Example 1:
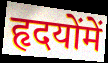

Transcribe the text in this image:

हृदयोंमें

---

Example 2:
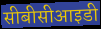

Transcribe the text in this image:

सीबीसीआइडी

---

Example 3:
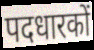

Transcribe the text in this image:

पदधारकों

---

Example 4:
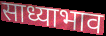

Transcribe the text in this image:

साध्याभाव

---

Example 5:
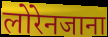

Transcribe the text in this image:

लोरेनजाना